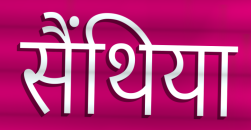
सैंथिया